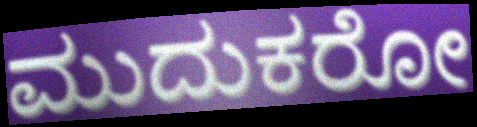
ಮುದುಕರೋ